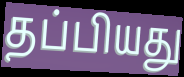
தப்பியது